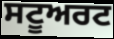
ਸਟੂਅਰਟ